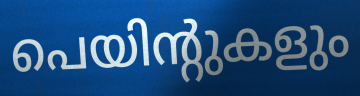
പെയിന്റുകളും